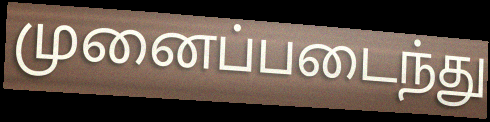
முனைப்படைந்து